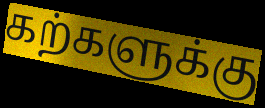
கற்களுக்கு